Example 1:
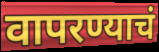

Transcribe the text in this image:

वापरण्याचं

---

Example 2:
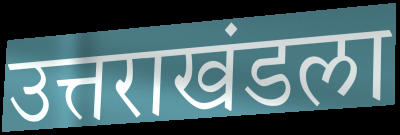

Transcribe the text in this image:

उत्तराखंडला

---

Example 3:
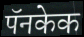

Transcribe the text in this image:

पॅनकेक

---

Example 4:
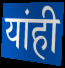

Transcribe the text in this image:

यांही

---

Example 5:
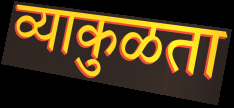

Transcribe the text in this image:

व्याकुळता